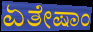
ಏತೇಷಾಂ